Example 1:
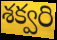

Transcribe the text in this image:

శక్వరి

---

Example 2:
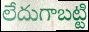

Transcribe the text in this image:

లేదుగాబట్టి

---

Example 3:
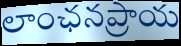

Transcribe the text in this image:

లాంఛనప్రాయ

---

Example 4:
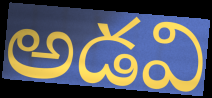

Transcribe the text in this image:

అడవి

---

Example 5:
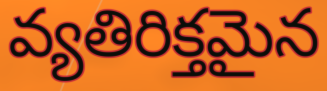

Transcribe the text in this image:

వ్యతిరిక్తమైన